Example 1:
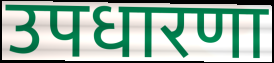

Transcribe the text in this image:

उपधारणा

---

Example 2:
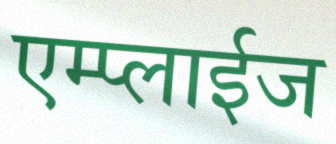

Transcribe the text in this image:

एम्प्लाईज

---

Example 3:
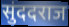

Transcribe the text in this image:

सुंददराज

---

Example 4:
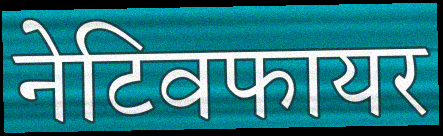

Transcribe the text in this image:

नेटिवफायर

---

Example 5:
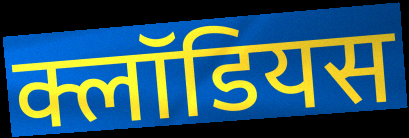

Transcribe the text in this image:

क्लॉडियस